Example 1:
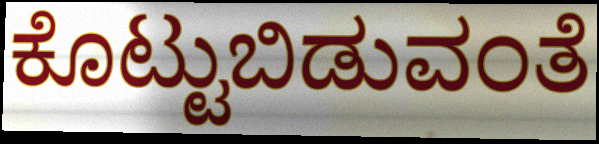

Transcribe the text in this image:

ಕೊಟ್ಟುಬಿಡುವಂತೆ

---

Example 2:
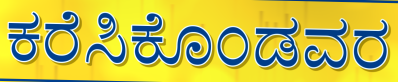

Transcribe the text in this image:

ಕರೆಸಿಕೊಂಡವರ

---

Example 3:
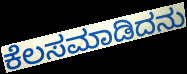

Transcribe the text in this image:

ಕೆಲಸಮಾಡಿದನು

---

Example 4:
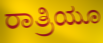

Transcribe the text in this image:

ರಾತ್ರಿಯೂ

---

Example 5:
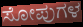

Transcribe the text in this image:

ಸೋಪುಗಳ